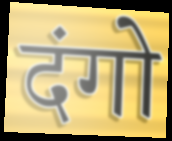
दंगो